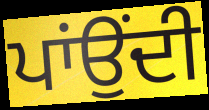
ਪਾਂਉਂਦੀ